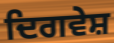
ਦਿਗਵੇਸ਼